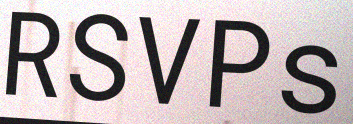
RSVPs